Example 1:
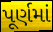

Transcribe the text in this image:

પૂર્ણમાં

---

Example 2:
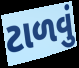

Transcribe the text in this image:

ટાળવું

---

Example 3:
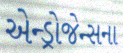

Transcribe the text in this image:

એન્ડ્રોજેન્સના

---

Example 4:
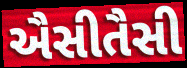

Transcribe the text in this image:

ઐસીતૈસી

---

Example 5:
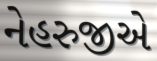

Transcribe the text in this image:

નેહરુજીએ